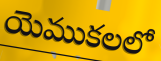
యెముకలలో